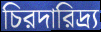
চিরদারিদ্র্য